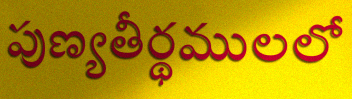
పుణ్యతీర్థములలో